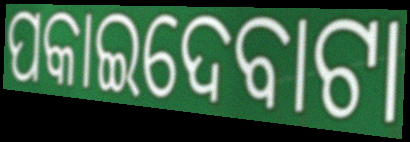
ପକାଇଦେବାଟା